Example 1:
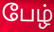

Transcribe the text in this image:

பேழ்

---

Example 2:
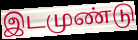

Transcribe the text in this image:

இடமுண்டு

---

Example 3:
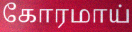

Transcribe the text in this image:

கோரமாய்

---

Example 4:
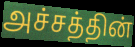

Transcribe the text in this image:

அச்சத்தின்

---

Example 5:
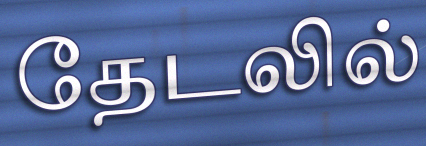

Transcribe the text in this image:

தேடலில்